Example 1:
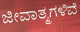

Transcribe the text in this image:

ಜೀವಾತ್ಮಗಳಿವೆ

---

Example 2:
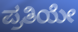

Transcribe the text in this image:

ಪ್ರತಿಯೇ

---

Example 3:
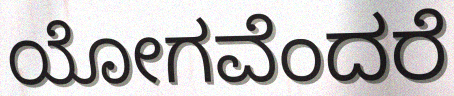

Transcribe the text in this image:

ಯೋಗವೆಂದರೆ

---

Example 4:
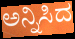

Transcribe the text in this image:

ಅನ್ನಿಸಿದ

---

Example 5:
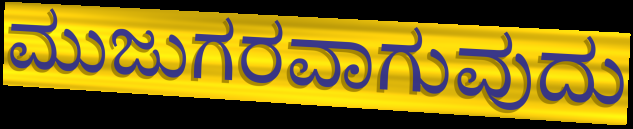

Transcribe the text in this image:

ಮುಜುಗರವಾಗುವುದು